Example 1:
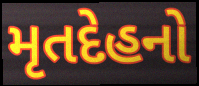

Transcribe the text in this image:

મૃતદેહનો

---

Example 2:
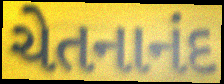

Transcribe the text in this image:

ચેતનાનંદ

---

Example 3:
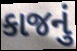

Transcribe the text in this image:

કાજનું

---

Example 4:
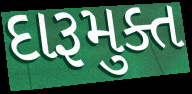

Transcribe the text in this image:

દારૂમુક્ત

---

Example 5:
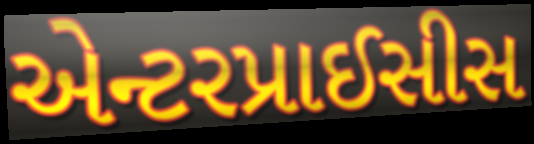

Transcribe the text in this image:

એન્ટરપ્રાઈસીસ